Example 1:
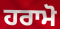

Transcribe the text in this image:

ਹਰਾਮੋ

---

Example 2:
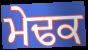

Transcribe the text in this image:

ਮੇਢਕ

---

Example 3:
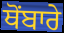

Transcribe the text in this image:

ਥੋਂਬਾਰੇ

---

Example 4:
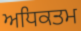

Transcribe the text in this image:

ਅਧਿਕਤਮ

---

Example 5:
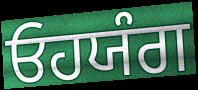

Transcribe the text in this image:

ਓਹਯੰਗ